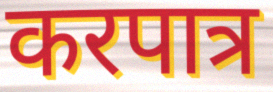
करपात्र